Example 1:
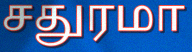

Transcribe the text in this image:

சதுரமா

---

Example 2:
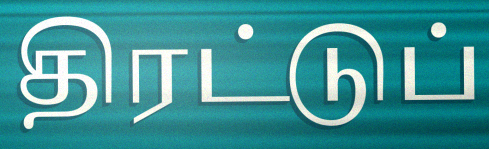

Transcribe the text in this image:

திரட்டுப்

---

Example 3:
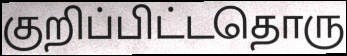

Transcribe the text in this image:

குறிப்பிட்டதொரு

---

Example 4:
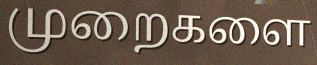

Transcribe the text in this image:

முறைகளை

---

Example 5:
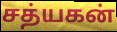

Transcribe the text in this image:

சத்யகன்